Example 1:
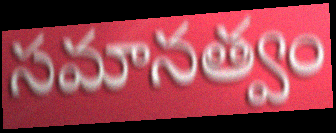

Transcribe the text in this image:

సమానత్వం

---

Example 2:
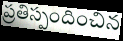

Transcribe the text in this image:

ప్రతిస్పందించిన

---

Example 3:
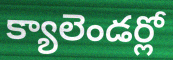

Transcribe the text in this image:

క్యాలెండర్లో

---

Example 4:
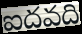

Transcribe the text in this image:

ఐదవది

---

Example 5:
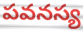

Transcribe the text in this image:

పవనస్య